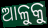
ଆଳୁକୁ